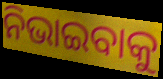
ନିଭାଇବାକୁ